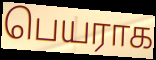
பெயராக